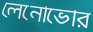
লেনোভোর